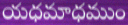
యధమాధముం